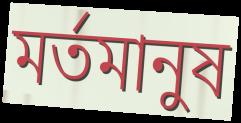
মর্তমানুষ